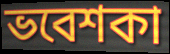
ভবেশকা